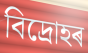
বিদ্ৰোহৰ